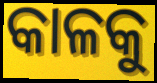
କାଳକୁ